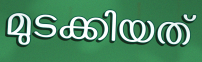
മുടക്കിയത്